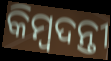
କିମ୍ଵଦନ୍ତୀ